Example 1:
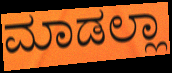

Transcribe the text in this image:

ಮಾಡಲ್ಲಾ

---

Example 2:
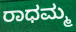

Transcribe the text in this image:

ರಾಧಮ್ಮ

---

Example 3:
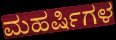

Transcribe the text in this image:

ಮಹರ್ಷಿಗಳ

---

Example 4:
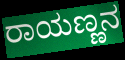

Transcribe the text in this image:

ರಾಯಣ್ಣನ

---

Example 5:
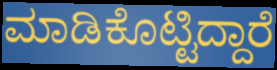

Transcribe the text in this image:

ಮಾಡಿಕೊಟ್ಟಿದ್ದಾರೆ